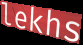
lekhs